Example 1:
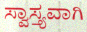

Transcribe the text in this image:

ಸ್ವಾಸ್ತ್ಯವಾಗಿ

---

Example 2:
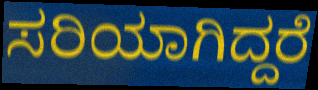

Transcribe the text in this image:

ಸರಿಯಾಗಿದ್ದರೆ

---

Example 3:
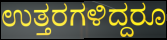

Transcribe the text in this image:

ಉತ್ತರಗಳಿದ್ದರೂ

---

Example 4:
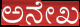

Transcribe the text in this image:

ಅನೇಖ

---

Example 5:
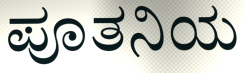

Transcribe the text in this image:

ಪೂತನಿಯ